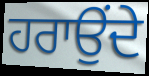
ਹਰਾਉਂਦੇ